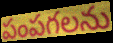
పంపగలను